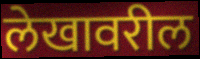
लेखावरील